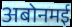
अबोनमई